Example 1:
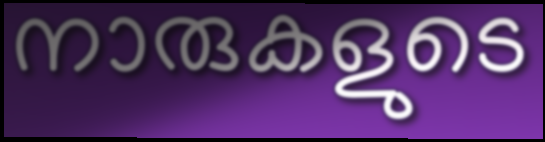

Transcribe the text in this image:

നാരുകളുടെ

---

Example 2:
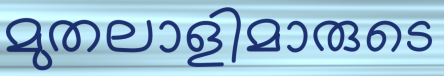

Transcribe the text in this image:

മുതലാളിമാരുടെ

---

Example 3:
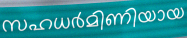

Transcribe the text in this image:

സഹധർമിണിയായ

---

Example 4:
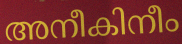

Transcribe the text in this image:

അനീകിനീം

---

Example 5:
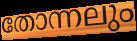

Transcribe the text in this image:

തോന്നലും